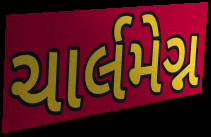
ચાર્લમેગ્ન